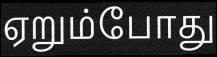
ஏறும்போது